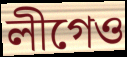
লীগেও